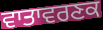
ਵਾਤਾਵਰਣਕ